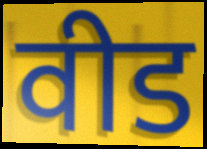
वीड